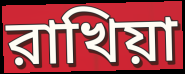
রাখিয়া